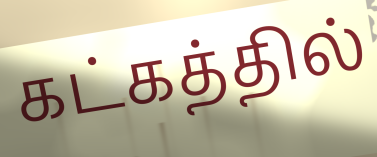
கட்கத்தில்